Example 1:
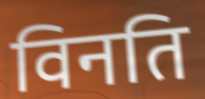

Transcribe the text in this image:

विनति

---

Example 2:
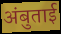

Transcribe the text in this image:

अंबुताई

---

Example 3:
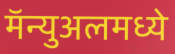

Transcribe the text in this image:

मॅन्युअलमध्ये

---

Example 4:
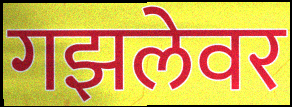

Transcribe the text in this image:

गझलेवर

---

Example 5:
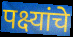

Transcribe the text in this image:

पक्ष्यांचे